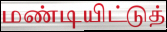
மண்டியிட்டுத்